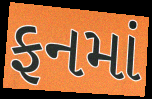
ફનમાં